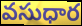
వసుధార